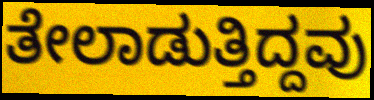
ತೇಲಾಡುತ್ತಿದ್ದವು